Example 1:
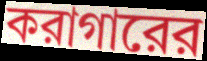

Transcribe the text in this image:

করাগারের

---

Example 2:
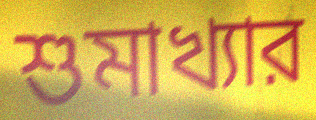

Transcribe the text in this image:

শুমাখ্যার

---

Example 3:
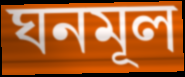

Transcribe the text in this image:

ঘনমূল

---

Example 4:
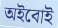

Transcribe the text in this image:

অইবোই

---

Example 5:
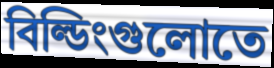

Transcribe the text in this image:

বিল্ডিংগুলোতে